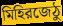
মিহিরজেঠু